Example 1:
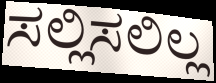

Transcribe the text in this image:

ಸಲ್ಲಿಸಲಿಲ್ಲ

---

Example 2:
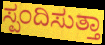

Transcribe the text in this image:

ಸ್ಪಂದಿಸುತ್ತಾ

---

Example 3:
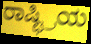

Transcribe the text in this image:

ರಾಷ್ಟ್ರಿಯ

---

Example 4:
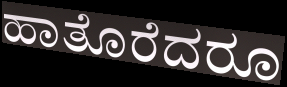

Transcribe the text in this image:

ಹಾತೊರೆದರೂ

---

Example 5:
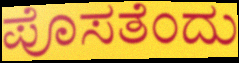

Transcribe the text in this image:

ಪೊಸತೆಂದು